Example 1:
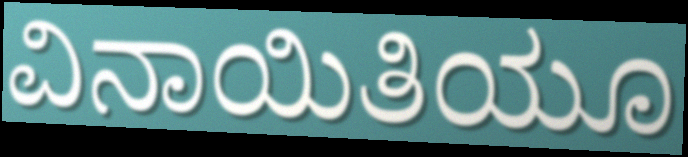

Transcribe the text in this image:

ವಿನಾಯಿತಿಯೂ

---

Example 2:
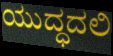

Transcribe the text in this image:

ಯುದ್ಧದಲಿ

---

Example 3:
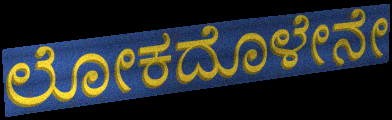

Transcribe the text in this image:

ಲೋಕದೊಳೇನೇ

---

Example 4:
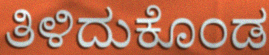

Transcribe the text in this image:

ತಿಳಿದುಕೊಂಡ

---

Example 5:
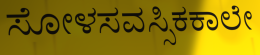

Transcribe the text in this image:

ಸೋಳಸವಸ್ಸಿಕಕಾಲೇ